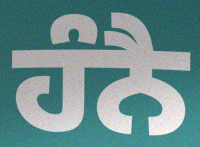
ਹੰਨੈ